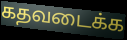
கதவடைக்க